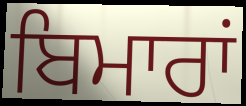
ਬਿਮਾਰਾਂ